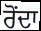
ਰੋਂਦਾ